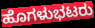
ಹೊಗಳುಭಟರು